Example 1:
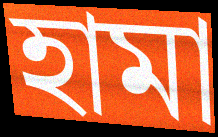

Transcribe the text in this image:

হামা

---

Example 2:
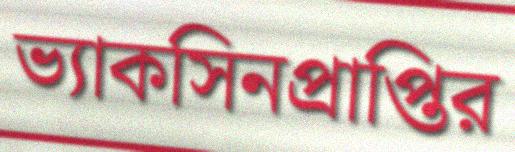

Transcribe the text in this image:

ভ্যাকসিনপ্রাপ্তির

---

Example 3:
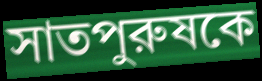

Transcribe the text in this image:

সাতপুরুষকে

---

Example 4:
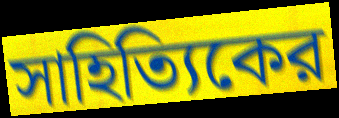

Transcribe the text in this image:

সাহিত্যিকের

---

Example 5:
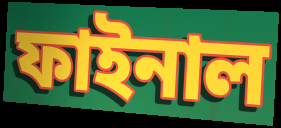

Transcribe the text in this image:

ফাইনাল